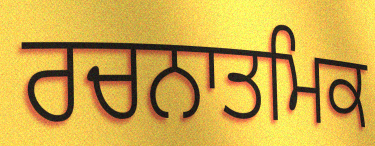
ਰਚਨਾਤਮਿਕ